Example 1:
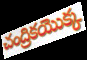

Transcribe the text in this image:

చంద్రికయొక్క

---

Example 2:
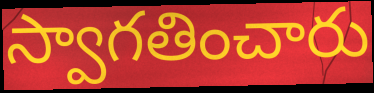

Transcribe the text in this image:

స్వాగతించారు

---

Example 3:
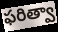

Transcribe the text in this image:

ఫరిత్వా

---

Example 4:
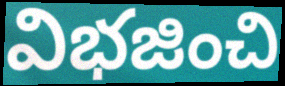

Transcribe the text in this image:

విభజించి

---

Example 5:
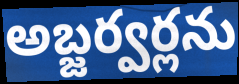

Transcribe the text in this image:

అబ్జర్వర్లను